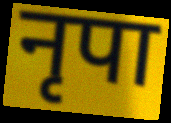
नृपा